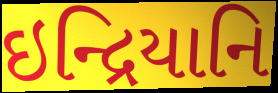
ઇન્દ્રિયાનિ